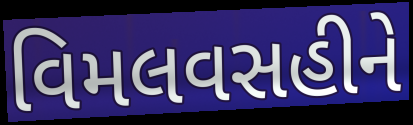
વિમલવસહીને